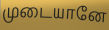
முடையானே